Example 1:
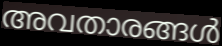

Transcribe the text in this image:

അവതാരങ്ങൾ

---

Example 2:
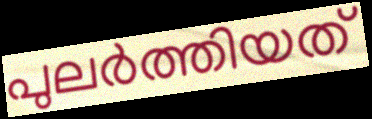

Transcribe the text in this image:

പുലർത്തിയത്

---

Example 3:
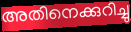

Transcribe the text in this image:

അതിനെക്കുറിച്ചു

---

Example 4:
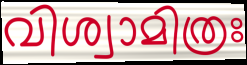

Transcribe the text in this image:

വിശ്വാമിത്രഃ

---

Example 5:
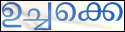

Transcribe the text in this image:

ഉച്ചക്കെ